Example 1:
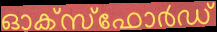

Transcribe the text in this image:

ഓക്സ്ഫോർഡ്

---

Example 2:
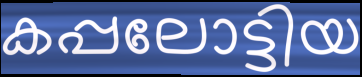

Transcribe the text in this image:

കപ്പലോട്ടിയ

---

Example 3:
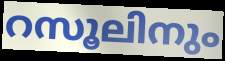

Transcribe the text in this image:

റസൂലിനും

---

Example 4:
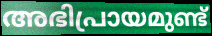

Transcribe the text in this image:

അഭിപ്രായമുണ്ട്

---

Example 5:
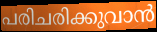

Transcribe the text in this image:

പരിചരിക്കുവാൻ